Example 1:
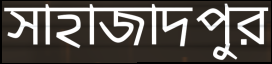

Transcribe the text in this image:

সাহাজাদপুর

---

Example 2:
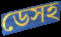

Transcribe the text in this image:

ডেসহ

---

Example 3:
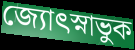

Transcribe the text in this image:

জ্যোৎস্নাভুক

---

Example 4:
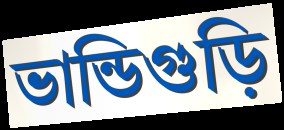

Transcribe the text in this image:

ভান্ডিগুড়ি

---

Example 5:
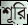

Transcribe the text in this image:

শূরি